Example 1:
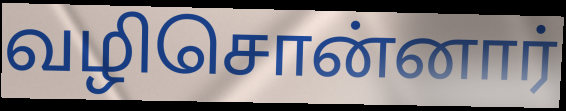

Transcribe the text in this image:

வழிசொன்னார்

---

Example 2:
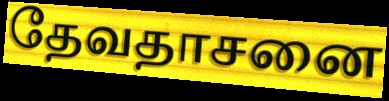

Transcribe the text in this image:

தேவதாசனை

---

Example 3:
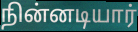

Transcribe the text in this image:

நின்னடியார்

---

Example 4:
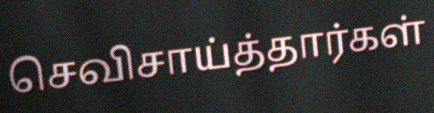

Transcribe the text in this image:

செவிசாய்த்தார்கள்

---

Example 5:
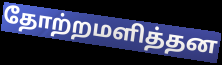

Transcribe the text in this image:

தோற்றமளித்தன